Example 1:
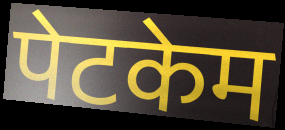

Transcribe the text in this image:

पेटकेम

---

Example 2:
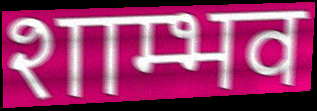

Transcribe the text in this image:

शाम्भव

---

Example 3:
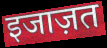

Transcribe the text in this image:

इजाज़त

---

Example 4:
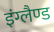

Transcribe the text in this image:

इंग्‍लैण्‍ड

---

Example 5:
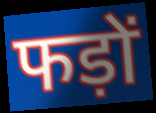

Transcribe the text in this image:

फड़ों